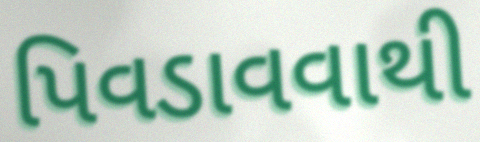
પિવડાવવાથી